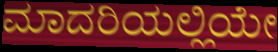
ಮಾದರಿಯಲ್ಲಿಯೇ